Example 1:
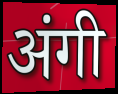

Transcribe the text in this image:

अंगी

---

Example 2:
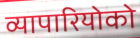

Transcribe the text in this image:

व्यापारियोको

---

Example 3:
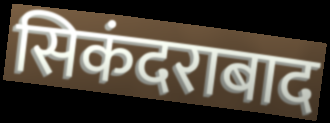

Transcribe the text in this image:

सिकंदराबाद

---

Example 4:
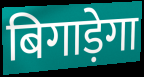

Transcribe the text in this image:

बिगाड़ेगा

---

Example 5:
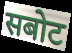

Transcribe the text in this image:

सबोट